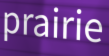
prairie